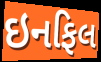
ઇનફિલ